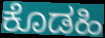
ಕೊಡಹಿ